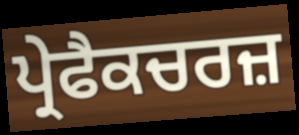
ਪ੍ਰੇਫੈਕਚਰਜ਼